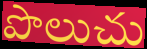
పొలుచు